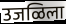
उजळिला